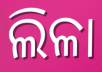
ଲିଳା